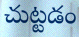
చుట్టడం